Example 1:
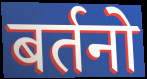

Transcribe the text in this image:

बर्तनो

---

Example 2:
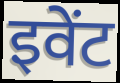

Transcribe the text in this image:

इवेंट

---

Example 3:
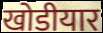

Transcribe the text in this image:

खोडीयार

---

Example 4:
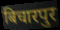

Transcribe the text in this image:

बिचारपुर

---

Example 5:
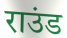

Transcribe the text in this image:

राउंड